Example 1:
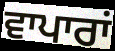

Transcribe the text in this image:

ਵਾਪਾਰਾਂ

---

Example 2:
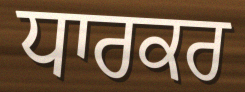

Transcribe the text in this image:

ਧਾਰਕਰ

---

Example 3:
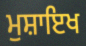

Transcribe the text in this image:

ਮੁਸ਼ਾਇਖ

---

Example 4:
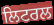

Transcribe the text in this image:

ਲਿਟਰਲ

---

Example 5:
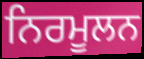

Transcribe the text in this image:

ਨਿਰਮੂਲਨ